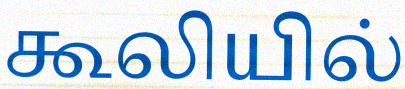
கூலியில்